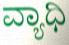
ವ್ಯಾಧಿ